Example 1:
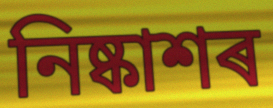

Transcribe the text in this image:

নিষ্কাশৰ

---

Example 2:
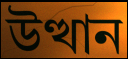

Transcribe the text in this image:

উত্থান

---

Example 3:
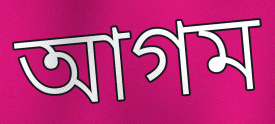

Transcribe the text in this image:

আগম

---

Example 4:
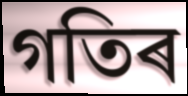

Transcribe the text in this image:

গতিৰ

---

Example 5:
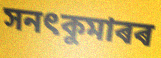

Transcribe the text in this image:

সনৎকুমাৰৰ